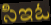
సిఇఓ